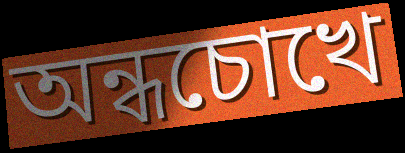
অন্ধচোখে